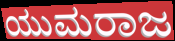
ಯುಮರಾಜ